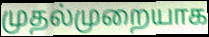
முதல்முறையாக